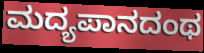
ಮದ್ಯಪಾನದಂಥ